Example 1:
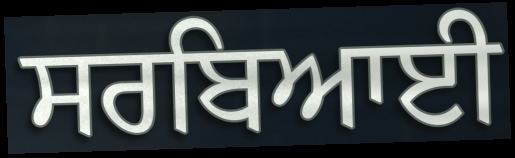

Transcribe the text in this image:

ਸਰਬਿਆਈ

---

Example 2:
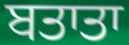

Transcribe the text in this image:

ਬਤਾਤਾ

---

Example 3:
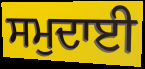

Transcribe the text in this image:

ਸਮੁਦਾਈ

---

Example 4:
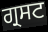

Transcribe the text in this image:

ਗ੍ਰਸਟ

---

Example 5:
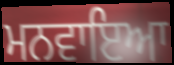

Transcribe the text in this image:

ਮਨਵਾਇਆ